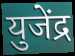
युजेंद्र